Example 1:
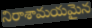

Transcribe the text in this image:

నిరాశామయమైన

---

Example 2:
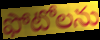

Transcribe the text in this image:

ఫోటోలను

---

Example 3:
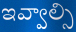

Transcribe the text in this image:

ఇవ్వాల్సి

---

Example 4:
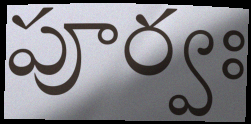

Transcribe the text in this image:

పూర్వః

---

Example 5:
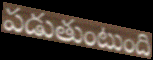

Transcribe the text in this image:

పడుతుంటుంది